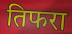
तिफरा